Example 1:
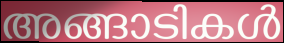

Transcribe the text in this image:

അങ്ങാടികൾ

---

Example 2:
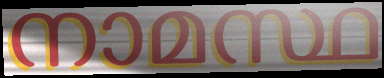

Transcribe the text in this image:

നാമസ്ഥ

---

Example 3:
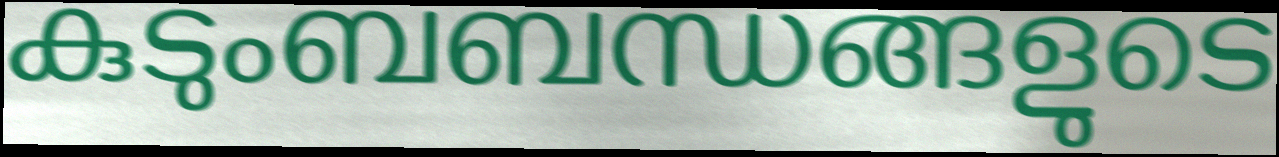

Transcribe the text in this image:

കുടുംബബന്ധങ്ങളുടെ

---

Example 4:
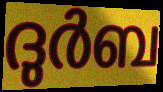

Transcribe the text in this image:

ദുർബ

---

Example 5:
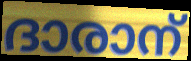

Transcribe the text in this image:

ദാരാന്